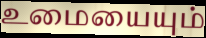
உமையையும்